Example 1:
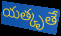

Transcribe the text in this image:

యత్కృతే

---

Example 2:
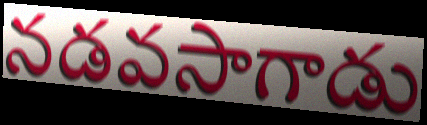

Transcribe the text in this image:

నడవసాగాడు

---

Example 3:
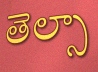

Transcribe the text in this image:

తెల్సా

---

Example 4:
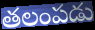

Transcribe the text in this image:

తలంపడు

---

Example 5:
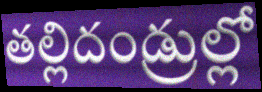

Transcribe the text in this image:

తల్లిదండ్రుల్లో